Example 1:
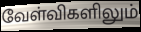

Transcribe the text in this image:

வேள்விகளிலும்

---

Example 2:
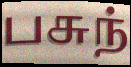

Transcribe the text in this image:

பசுந்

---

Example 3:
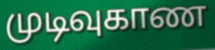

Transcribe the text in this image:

முடிவுகாண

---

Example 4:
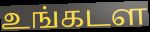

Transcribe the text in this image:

உங்கடள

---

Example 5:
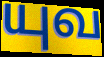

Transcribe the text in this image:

யுவ